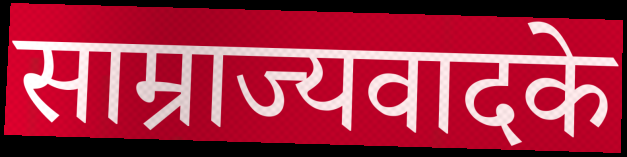
साम्राज्यवादके